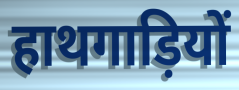
हाथगाड़ियों